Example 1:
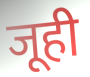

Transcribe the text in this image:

जूही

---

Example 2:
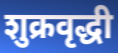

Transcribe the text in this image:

शुक्रवृद्धी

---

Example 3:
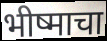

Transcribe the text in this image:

भीष्माचा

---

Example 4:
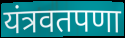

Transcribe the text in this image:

यंत्रवतपणा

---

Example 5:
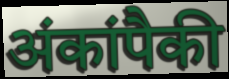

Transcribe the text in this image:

अंकांपैकी